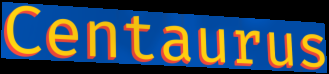
Centaurus